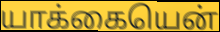
யாக்கையென்